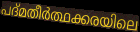
പദ്മതീർത്ഥക്കരയിലെ